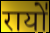
रायो॑